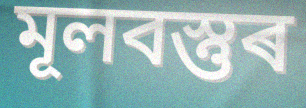
মূলবস্তুৰ